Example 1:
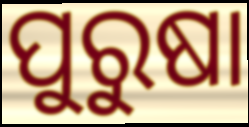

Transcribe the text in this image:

ପୁରୁଷା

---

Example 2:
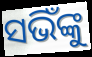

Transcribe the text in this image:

ସଭିଁଙ୍କୁ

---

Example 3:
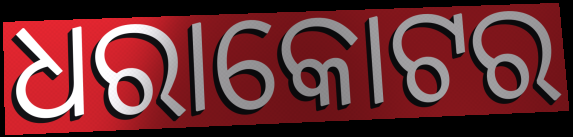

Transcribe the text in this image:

ଧରାକୋଟର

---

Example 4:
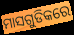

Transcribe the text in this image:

ମାସଗୁଡିକରେ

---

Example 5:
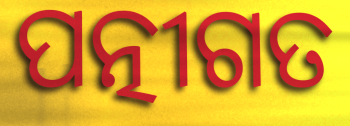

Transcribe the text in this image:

ପତ୍ନୀଗତ